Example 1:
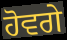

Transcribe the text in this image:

ਹੋਵਗੇ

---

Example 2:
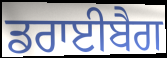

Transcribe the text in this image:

ਡਰਾਈਬੈਗ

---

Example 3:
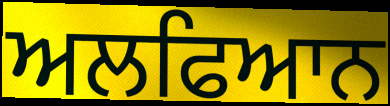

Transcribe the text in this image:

ਅਲਫਿਆਨ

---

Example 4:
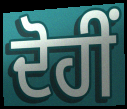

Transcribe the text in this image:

ਦੋਹੀਂ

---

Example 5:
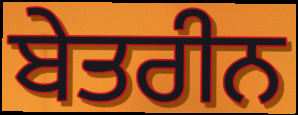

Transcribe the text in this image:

ਬੇਤਰੀਨ